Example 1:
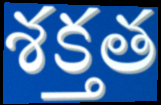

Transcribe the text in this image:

శక్తత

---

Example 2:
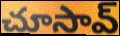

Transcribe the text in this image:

చూసావ్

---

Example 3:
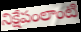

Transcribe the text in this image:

నిక్షేపంలాంటి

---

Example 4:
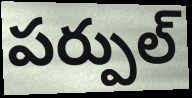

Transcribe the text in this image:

పర్పుల్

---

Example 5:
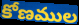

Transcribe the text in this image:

కోణముల